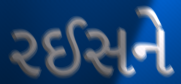
રઈસને